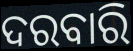
ଦରବାରି